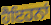
ਹੈਇਹਨਾਂ